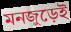
মনজুড়েই